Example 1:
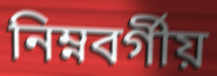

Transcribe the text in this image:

নিম্নবর্গীয়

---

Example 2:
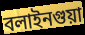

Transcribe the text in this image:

বলাইনগুয়া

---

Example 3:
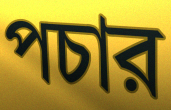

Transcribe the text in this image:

পচার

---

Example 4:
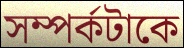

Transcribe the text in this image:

সম্পর্কটাকে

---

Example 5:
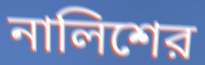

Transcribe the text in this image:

নালিশের